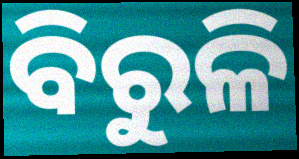
ବିରୁଳି